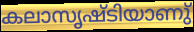
കലാസൃഷ്ടിയാണു്